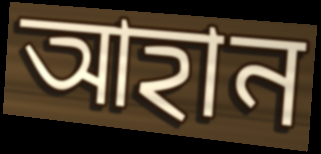
আহান